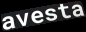
avesta